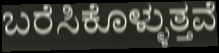
ಬರೆಸಿಕೊಳ್ಳುತ್ತವೆ